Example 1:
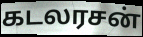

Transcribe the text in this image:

கடலரசன்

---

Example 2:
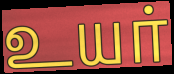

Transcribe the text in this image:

உயர்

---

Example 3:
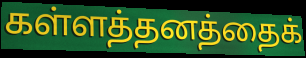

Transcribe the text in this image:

கள்ளத்தனத்தைக்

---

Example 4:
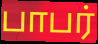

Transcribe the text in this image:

பாபர்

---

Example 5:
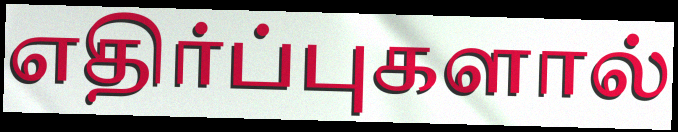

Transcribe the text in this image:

எதிர்ப்புகளால்